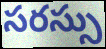
సరస్సు